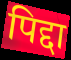
पिद्दा